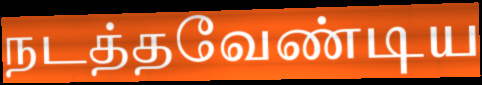
நடத்தவேண்டிய